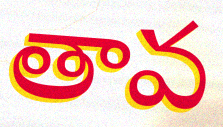
తావ